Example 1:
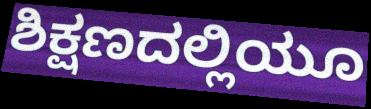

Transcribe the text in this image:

ಶಿಕ್ಷಣದಲ್ಲಿಯೂ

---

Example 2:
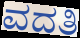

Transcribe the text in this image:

ವದತಿ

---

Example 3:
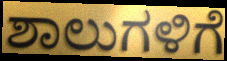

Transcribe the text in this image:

ಶಾಲುಗಳಿಗೆ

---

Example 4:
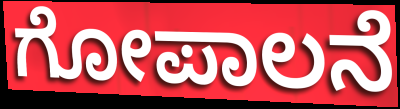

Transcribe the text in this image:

ಗೋಪಾಲನೆ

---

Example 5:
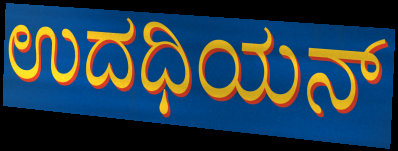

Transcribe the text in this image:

ಉದಧಿಯನ್